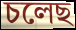
চলেছ